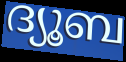
ദ്യൂബ